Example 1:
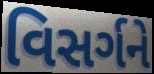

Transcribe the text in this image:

વિસર્ગને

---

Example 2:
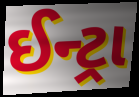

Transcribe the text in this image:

ઈન્ટ્રા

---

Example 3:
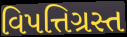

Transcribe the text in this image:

વિપત્તિગ્રસ્ત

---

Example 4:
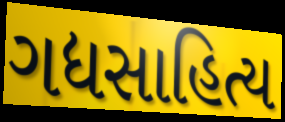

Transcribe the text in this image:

ગદ્યસાહિત્ય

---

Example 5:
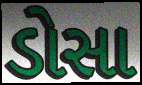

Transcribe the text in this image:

ડોસા